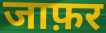
जाफ़र